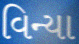
વિન્યા